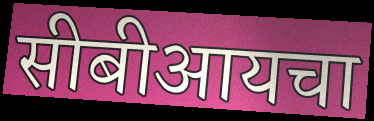
सीबीआयचा